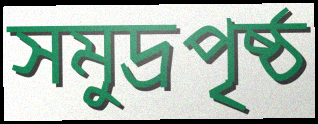
সমুদ্রপৃষ্ঠ